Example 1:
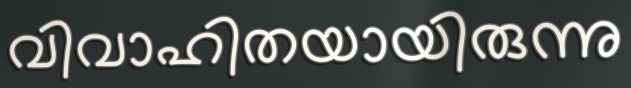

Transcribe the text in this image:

വിവാഹിതയായിരുന്നു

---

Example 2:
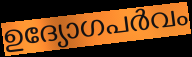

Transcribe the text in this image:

ഉദ്യോഗപർവം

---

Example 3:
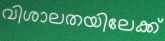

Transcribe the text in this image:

വിശാലതയിലേക്ക്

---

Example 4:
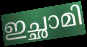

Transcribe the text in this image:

ഇച്ഛാമി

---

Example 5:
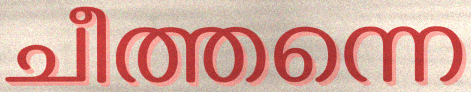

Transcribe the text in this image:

ചീത്തന്നെ